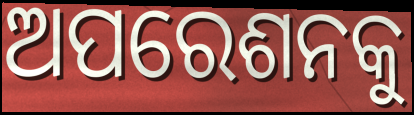
ଅପରେଶନକୁ